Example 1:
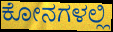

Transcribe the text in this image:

ಕೋನಗಳಲ್ಲಿ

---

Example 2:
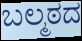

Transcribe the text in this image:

ಬಲ್ಮಠದ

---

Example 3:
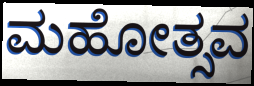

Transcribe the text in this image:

ಮಹೋತ್ಸವ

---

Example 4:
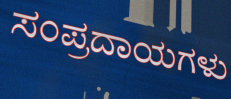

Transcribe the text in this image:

ಸಂಪ್ರದಾಯಗಳು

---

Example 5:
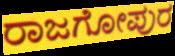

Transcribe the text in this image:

ರಾಜಗೋಪುರ